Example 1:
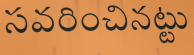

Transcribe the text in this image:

సవరించినట్టు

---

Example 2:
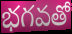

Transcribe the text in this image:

భగవతో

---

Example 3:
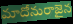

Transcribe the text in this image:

మాదోనురాజైన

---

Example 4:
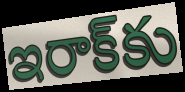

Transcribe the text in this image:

ఇరాక్‌కు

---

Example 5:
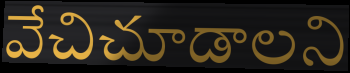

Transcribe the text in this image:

వేచిచూడాలని